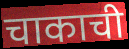
चाकाची